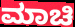
ಮಾಚಿ